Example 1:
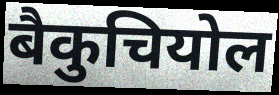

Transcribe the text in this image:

बैकुचियोल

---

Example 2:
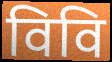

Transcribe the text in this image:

विवि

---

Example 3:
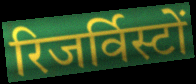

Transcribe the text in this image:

रिजर्विस्टों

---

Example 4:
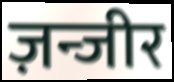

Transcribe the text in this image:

ज़न्जीर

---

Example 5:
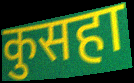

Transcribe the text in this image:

कुसहा